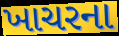
ખાચરના